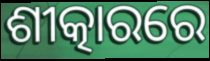
ଶୀତ୍କାରରେ